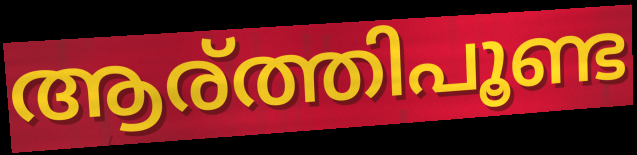
ആര്ത്തിപൂണ്ട